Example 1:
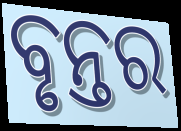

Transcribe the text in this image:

ବୃନ୍ତର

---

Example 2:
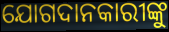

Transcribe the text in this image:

ଯୋଗଦାନକାରୀଙ୍କୁ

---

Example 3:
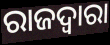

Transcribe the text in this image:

ରାଜଦ୍ୱାରା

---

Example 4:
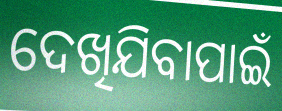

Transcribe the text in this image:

ଦେଖିଯିବାପାଇଁ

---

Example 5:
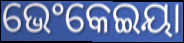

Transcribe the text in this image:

ଭେଂକେଇୟା